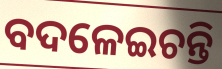
ବଦଳେଇଚନ୍ତି